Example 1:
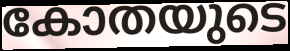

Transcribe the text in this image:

കോതയുടെ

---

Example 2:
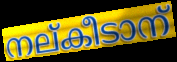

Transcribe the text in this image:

നല്കീടാന്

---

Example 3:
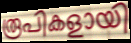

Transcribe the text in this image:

രൂപികളായി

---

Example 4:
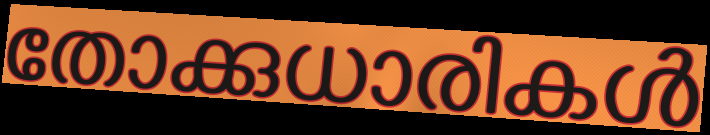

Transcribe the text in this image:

തോക്കുധാരികൾ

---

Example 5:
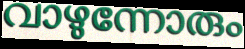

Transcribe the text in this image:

വാഴുന്നോരും